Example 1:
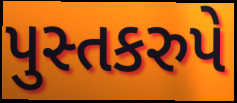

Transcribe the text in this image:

પુસ્તકરુપે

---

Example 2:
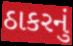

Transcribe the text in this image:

ઠાકરનું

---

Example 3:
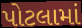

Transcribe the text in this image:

પોટલામાં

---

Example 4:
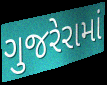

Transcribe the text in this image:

ગુજરેરામાં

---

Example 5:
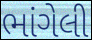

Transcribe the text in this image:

ભાંગેલી